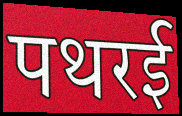
पथरई